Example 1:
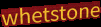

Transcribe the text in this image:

whetstone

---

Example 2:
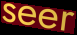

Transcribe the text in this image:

seer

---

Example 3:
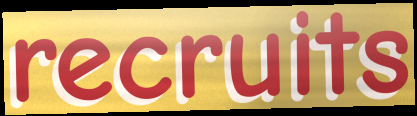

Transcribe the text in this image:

recruits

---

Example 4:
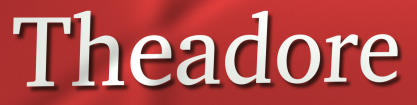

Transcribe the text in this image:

Theadore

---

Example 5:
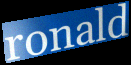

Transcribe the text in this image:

ronald